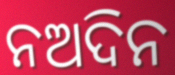
ନଅଦିନ